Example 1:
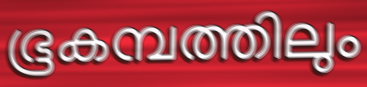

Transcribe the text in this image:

ഭൂകമ്പത്തിലും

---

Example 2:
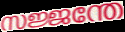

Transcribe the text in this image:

സജ്ജന്തേ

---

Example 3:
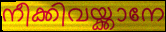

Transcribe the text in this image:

നീക്കിവയ്ക്കാനേ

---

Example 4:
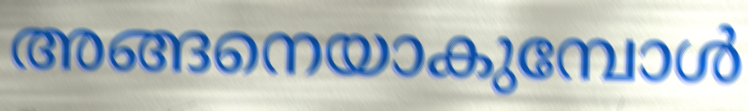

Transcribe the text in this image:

അങ്ങനെയാകുമ്പോൾ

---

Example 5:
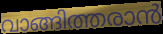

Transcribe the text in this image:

വാങ്ങിത്തരാൻ